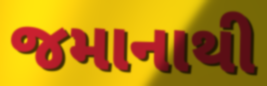
જમાનાથી